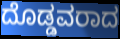
ದೊಡ್ಡವರಾದ